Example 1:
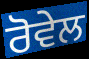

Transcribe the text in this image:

ਰੋਵੇਲ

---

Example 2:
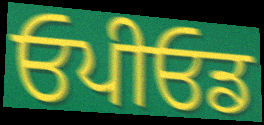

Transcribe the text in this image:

ਓਪੀਓਡ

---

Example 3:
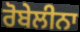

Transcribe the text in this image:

ਰੋਬੇਲੀਨਾ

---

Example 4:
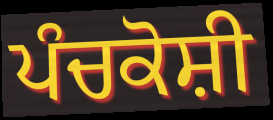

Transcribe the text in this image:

ਪੰਚਕੋਸ਼ੀ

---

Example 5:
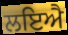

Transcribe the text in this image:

ਲਇਐ